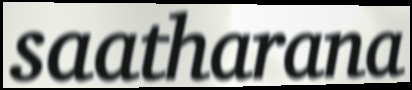
saatharana